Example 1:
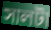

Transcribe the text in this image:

সালটা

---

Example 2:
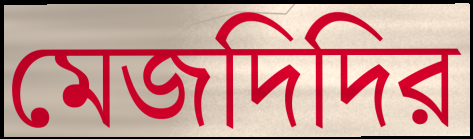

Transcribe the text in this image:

মেজদিদির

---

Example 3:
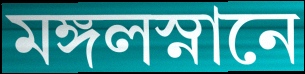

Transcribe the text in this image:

মঙ্গলস্নানে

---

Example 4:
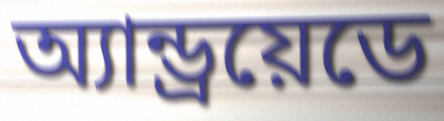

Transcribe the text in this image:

অ্যান্ড্রয়েডে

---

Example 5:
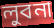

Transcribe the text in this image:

লুবনা